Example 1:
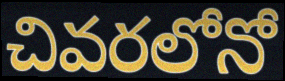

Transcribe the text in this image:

చివరలోనో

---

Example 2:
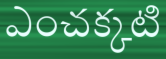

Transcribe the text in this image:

ఎంచక్కటి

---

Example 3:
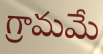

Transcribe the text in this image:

గ్రామమే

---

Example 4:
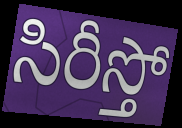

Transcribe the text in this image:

సిరీస్తో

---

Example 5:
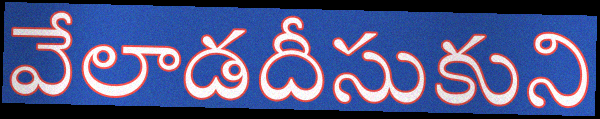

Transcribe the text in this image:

వేలాడదీసుకుని